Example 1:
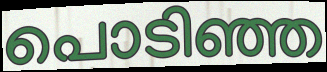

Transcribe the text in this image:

പൊടിഞ്ഞ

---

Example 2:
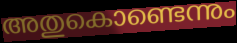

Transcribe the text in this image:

അതുകൊണ്ടെന്നും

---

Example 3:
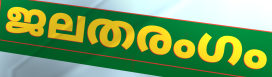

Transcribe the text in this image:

ജലതരംഗം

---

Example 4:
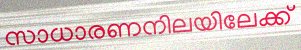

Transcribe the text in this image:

സാധാരണനിലയിലേക്ക്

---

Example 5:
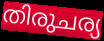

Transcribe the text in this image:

തിരുചര്യ